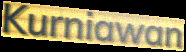
Kurniawan